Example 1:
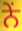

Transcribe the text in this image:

ਨੇਂ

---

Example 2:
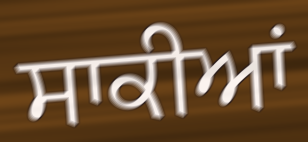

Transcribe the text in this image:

ਸਾਕੀਆਂ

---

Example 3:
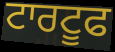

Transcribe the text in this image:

ਟਾਰਟੂਫ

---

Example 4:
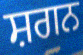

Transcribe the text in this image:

ਸ਼ਗਨ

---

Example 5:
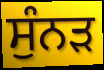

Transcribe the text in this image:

ਸੁੰਨੜ